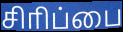
சிரிப்பை